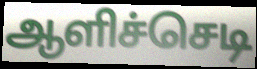
ஆளிச்செடி